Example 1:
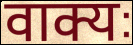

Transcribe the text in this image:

वाक्यः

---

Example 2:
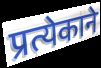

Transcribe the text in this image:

प्रत्येकाने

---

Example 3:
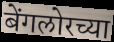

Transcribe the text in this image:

बेंगलोरच्या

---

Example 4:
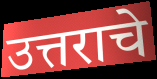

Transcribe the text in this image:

उत्तराचे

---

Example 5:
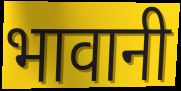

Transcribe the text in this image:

भावानी